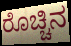
ರೊಚ್ಚಿನ